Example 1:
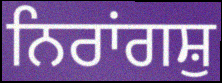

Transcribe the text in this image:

ਨਿਰਾਂਗਸ਼ੁ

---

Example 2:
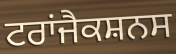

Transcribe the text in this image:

ਟਰਾਂਜੈਕਸ਼ਨਸ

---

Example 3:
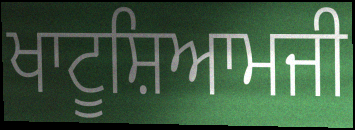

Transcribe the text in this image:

ਖਾਟੂਸ਼ਿਆਮਜੀ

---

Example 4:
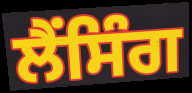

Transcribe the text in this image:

ਲੈਂਸਿੰਗ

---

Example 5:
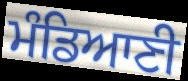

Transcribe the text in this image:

ਮੰਡਿਆਣੀ